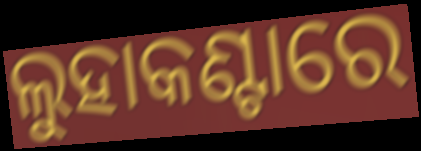
ଲୁହାକଣ୍ଟାରେ